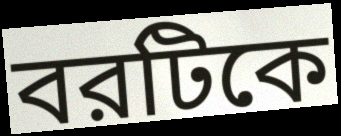
বরটিকে